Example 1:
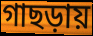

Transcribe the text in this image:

গাছড়ায়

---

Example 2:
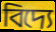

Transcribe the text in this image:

বিদ্যে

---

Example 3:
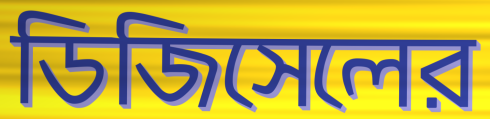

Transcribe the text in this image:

ডিজিসেলের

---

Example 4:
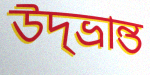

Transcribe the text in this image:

উদ্‌ভ্রান্ত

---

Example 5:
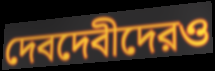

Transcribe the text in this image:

দেবদেবীদেরও